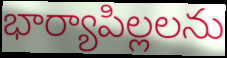
భార్యాపిల్లలను